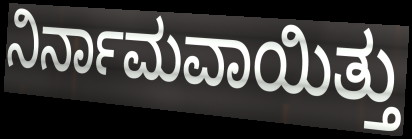
ನಿರ್ನಾಮವಾಯಿತ್ತು